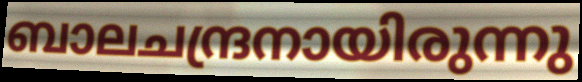
ബാലചന്ദ്രനായിരുന്നു